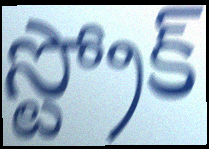
స్ట్రోక్